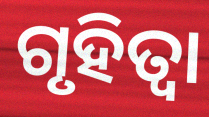
ଗୃହିତ୍ବା